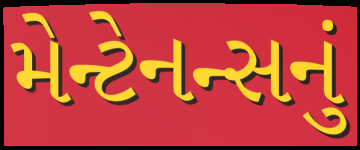
મેન્ટેનન્સનું